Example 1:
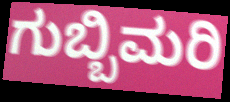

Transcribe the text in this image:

ಗುಬ್ಬಿಮರಿ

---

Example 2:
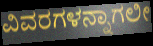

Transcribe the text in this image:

ವಿವರಗಳನ್ನಾಗಲೀ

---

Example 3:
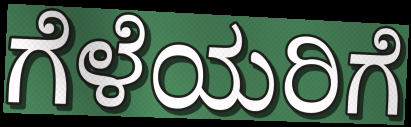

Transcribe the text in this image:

ಗೆಳೆಯರಿಗೆ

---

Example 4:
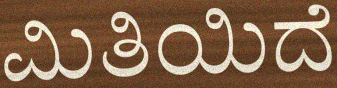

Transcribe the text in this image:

ಮಿತಿಯಿದೆ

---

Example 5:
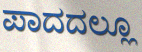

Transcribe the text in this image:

ಪಾದದಲ್ಲೂ